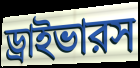
ড্রাইভারস